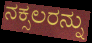
ನಕ್ಸಲರನ್ನು